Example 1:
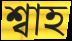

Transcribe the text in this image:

শ্বাহ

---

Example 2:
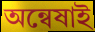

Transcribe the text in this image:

অন্বেষাই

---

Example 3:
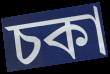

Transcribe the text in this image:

চকা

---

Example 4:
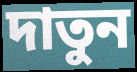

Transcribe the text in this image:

দাতুন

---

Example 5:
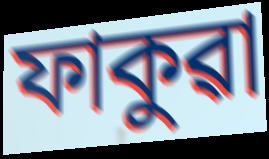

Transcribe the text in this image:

ফাকুৱা